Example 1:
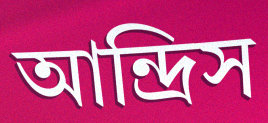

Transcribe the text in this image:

আন্দ্রিস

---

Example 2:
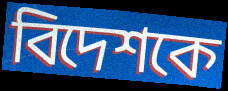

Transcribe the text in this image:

বিদেশকে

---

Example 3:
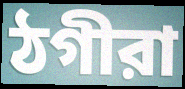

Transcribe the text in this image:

ঠগীরা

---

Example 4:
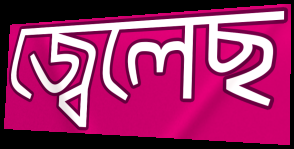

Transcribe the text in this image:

জ্বেলেছ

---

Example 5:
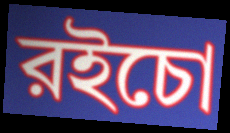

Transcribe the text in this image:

রইচো